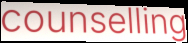
counselling